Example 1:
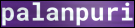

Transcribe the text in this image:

palanpuri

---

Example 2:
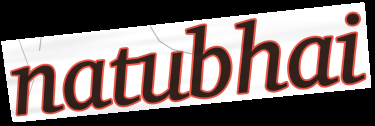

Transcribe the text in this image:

natubhai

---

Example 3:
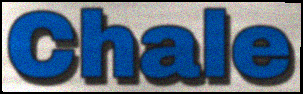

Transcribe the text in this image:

Chale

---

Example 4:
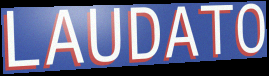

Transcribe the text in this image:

LAUDATO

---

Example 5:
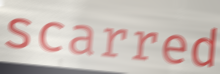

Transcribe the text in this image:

scarred